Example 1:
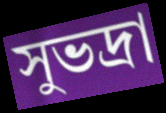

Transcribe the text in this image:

সুভদ্রা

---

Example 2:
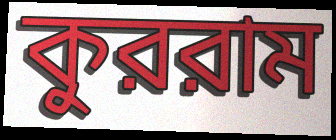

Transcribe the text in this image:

কুররাম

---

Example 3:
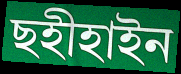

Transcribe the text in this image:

ছহীহাইন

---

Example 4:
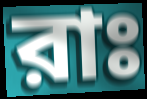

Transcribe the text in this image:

রাঃ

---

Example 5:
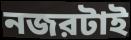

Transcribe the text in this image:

নজরটাই